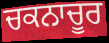
ਚਕਨਾਚੂਰ